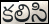
కలిసి